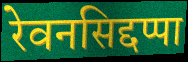
रेवनसिद्दप्पा